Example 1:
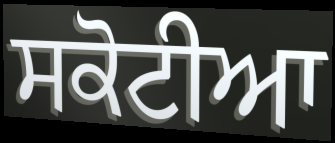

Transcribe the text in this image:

ਸਕੋਟੀਆ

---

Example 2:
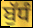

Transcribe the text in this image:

ਬੁੱਧੰ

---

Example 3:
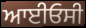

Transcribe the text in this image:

ਆਈਓਸੀ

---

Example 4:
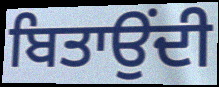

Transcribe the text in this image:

ਬਿਤਾਉਂਦੀ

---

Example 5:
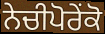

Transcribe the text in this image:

ਨੇਚੀਪੋਰੇਂਕੋ